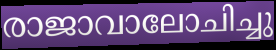
രാജാവാലോചിച്ചു